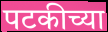
पटकीच्या